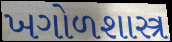
ખગોળશાસ્ત્ર